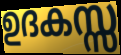
ഉദകസ്സ